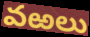
వఱలు